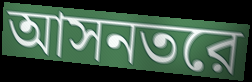
আসনতরে